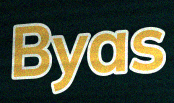
Byas